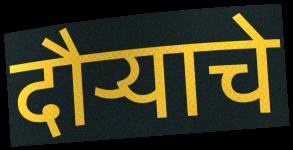
दौर्‍याचे